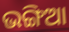
ଭଙ୍ଗିଆ